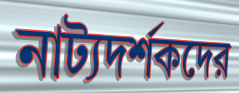
নাট্যদর্শকদের